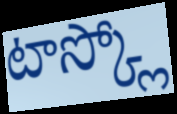
టాస్క్లో